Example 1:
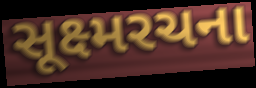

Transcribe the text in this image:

સૂક્ષ્મરચના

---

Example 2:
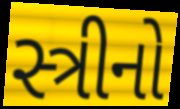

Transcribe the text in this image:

સ્ત્રીનો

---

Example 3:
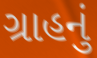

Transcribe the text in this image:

ગ્રાહનું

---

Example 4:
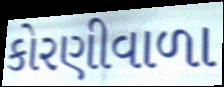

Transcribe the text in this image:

કોરણીવાળા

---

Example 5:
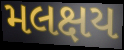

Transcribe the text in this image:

મલક્ષય